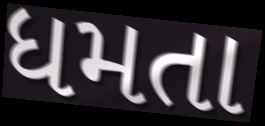
ધમતા